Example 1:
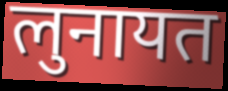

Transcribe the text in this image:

लुनायत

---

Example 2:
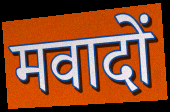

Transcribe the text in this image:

मवादों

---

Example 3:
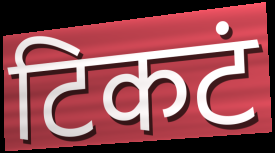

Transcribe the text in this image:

टिकटं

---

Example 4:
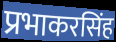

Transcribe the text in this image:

प्रभाकरसिंह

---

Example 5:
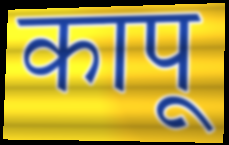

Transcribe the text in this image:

कापू